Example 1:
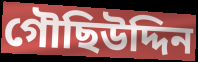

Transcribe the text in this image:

গৌছিউদ্দিন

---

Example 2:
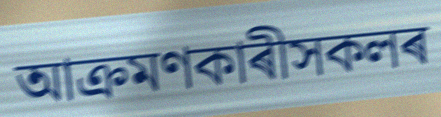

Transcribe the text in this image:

আক্ৰমণকাৰীসকলৰ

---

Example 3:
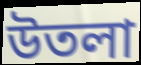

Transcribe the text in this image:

উতলা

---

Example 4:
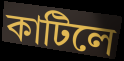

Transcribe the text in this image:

কাটিলে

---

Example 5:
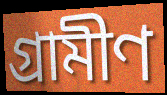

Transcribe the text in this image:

গ্ৰামীণ